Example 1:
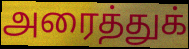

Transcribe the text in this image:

அரைத்துக்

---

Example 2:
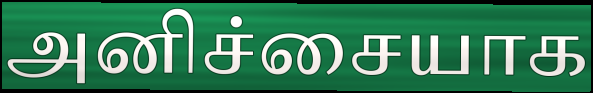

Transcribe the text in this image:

அனிச்சையாக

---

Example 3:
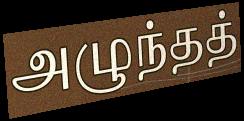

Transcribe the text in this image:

அழுந்தத்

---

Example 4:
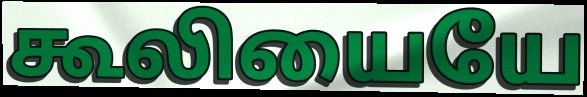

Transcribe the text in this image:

கூலியையே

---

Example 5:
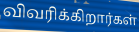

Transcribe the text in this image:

விவரிக்கிறார்கள்